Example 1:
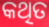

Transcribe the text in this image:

କଥିତ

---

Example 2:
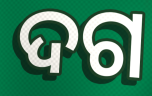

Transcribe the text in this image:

ଦଗ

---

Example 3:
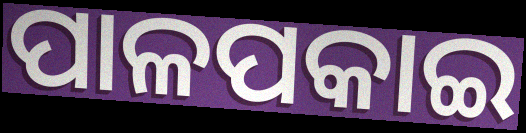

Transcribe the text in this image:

ପାଳପକାଇ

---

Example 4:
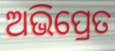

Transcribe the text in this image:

ଅଭିପ୍ରେତ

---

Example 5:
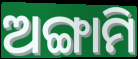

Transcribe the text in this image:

ଅଙ୍ଗାମି